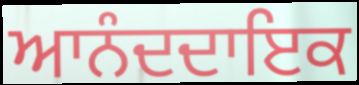
ਆਨੰਦਦਾਇਕ